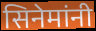
सिनेमांनी